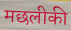
मछलीकी